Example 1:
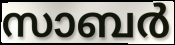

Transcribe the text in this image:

സാബർ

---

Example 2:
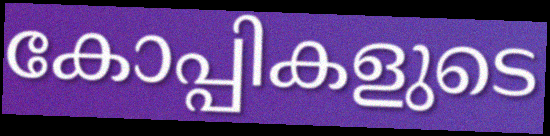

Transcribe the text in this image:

കോപ്പികളുടെ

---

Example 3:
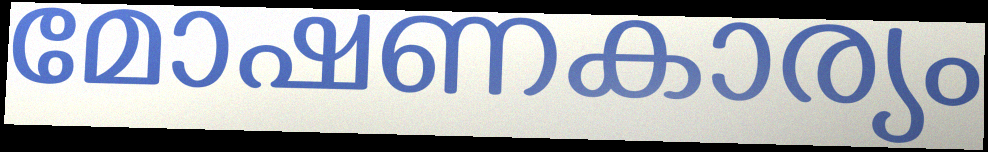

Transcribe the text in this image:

മോഷണകാര്യം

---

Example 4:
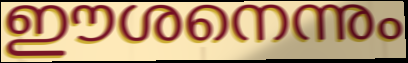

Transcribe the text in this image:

ഈശനെന്നും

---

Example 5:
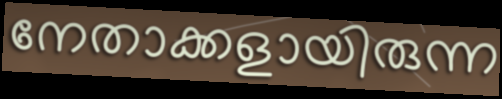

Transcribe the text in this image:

നേതാക്കളായിരുന്ന